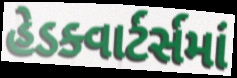
હેડક્વાર્ટર્સમાં